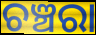
ଚଞ୍ଚରା